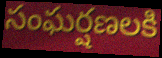
సంఘర్షణలకి